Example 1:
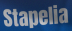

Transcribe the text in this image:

Stapelia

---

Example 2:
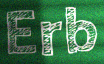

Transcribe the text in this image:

Erb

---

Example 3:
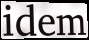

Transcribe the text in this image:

idem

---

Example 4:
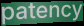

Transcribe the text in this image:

patency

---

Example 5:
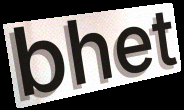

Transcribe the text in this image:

bhet